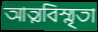
আত্মবিস্মৃতা